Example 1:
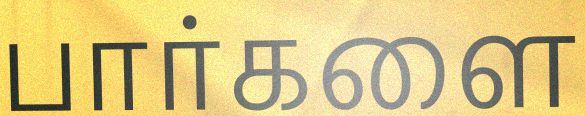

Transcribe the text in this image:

பார்களை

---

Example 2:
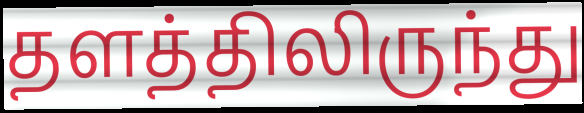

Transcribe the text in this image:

தளத்திலிருந்து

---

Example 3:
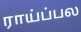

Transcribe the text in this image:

ராய்ப்பல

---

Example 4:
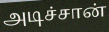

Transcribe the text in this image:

அடிச்சான்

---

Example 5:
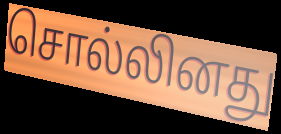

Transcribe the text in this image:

சொல்லினது